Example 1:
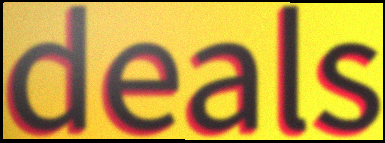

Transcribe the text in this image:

deals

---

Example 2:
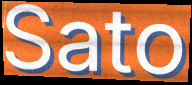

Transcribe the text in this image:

Sato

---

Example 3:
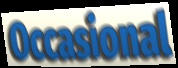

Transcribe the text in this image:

Occasional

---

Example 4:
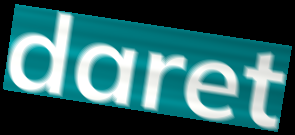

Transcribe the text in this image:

daret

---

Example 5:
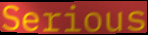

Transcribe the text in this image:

Serious